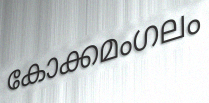
കോക്കമംഗലം